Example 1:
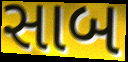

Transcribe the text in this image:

સાબ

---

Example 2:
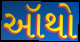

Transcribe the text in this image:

ઑથો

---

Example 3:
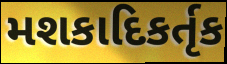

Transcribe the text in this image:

મશકાદિકર્તૃક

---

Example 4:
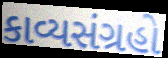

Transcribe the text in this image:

કાવ્યસંગ્રહો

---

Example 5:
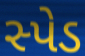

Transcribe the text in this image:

સ્પેડ